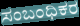
ಸಂಬಂಧಿಕರ